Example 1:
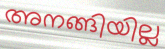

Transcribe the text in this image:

അനങ്ങിയില്ല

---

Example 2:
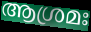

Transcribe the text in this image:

ആശ്രമഃ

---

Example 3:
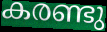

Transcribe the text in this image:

കരണ്ടു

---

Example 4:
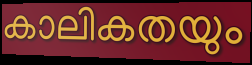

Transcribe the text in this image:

കാലികതയും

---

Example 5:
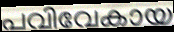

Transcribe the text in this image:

പവിവേകായ